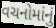
વચનોમાંનું